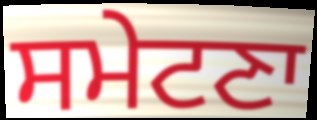
ਸਮੇਟਣਾ